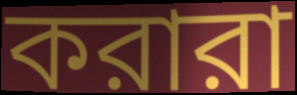
করারা